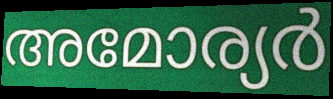
അമോര്യർ